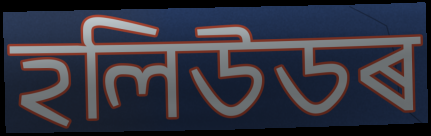
হলিউডৰ